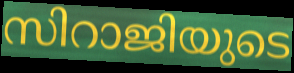
സിറാജിയുടെ